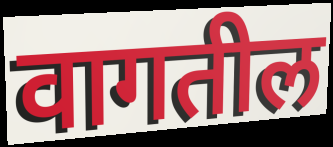
वागतील